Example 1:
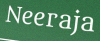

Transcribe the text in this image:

Neeraja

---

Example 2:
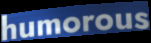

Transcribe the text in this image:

humorous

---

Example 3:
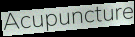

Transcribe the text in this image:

Acupuncture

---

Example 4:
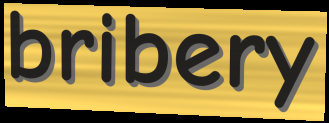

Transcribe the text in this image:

bribery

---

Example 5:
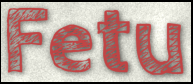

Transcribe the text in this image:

Fetu